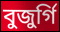
বুজুর্গি